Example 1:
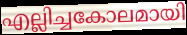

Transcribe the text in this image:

എല്ലിച്ചകോലമായി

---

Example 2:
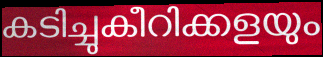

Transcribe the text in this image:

കടിച്ചുകീറിക്കളയും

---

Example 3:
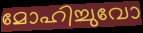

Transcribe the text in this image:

മോഹിച്ചുവോ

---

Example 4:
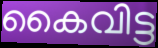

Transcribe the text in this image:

കൈവിട്ട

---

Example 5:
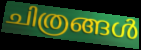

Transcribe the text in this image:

ചിത്രങ്ങൾ